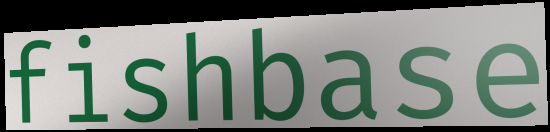
fishbase